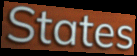
States